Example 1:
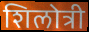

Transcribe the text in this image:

शिलोत्री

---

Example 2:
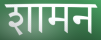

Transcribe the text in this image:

शामन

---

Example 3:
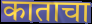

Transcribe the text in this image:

काताचा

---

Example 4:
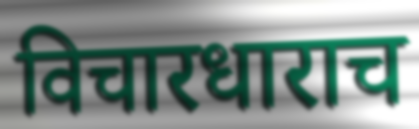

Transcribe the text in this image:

विचारधाराच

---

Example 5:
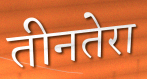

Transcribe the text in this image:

तीनतेरा